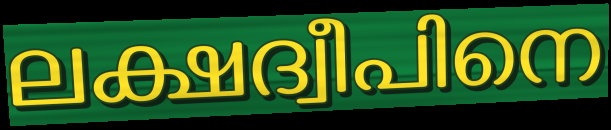
ലക്ഷദ്വീപിനെ